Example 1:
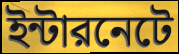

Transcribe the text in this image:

ইন্টারনেটে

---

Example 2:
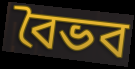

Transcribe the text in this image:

বৈভব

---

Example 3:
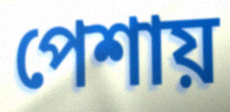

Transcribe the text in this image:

পেশায়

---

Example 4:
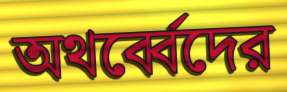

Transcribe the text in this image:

অথর্ব্বেদের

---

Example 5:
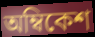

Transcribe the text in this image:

অম্বিকেশ